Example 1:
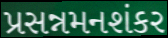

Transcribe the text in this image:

પ્રસન્નમનશંકર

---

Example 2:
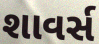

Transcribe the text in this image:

શાવર્સ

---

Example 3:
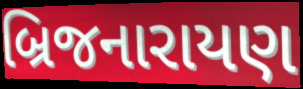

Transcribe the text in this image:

બ્રિજનારાયણ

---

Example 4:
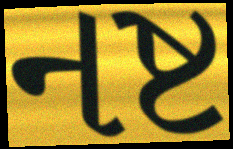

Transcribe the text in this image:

નષ્ટ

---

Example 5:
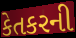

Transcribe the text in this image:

કેતકરની